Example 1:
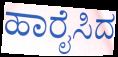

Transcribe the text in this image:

ಹಾರೈಸಿದ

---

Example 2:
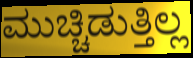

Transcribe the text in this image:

ಮುಚ್ಚಿಡುತ್ತಿಲ್ಲ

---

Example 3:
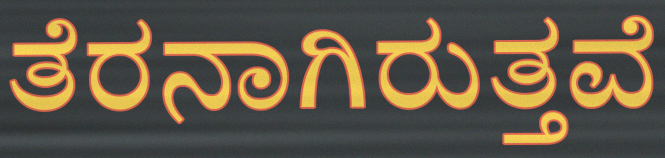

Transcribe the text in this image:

ತೆರನಾಗಿರುತ್ತವೆ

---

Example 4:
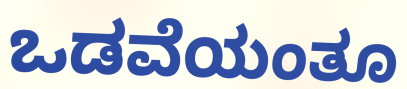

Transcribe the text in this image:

ಒಡವೆಯಂತೂ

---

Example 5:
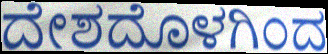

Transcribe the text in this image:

ದೇಶದೊಳಗಿಂದ